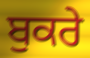
ਬੁਕਰੇ